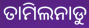
ତାମିଲନାଡୁ